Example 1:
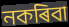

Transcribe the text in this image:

নকৰিবা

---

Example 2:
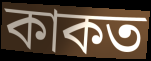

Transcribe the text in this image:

কাকত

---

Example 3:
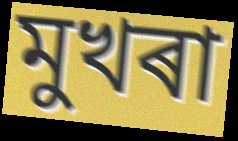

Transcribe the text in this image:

মুখৰা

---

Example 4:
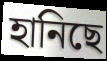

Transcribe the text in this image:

হানিছে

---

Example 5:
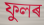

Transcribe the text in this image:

ফুলৰ